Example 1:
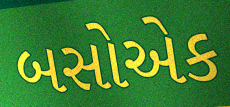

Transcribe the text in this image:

બસોએક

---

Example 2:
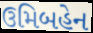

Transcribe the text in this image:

ઉમિબહેન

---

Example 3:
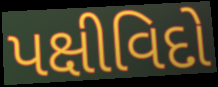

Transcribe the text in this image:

પક્ષીવિદો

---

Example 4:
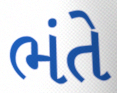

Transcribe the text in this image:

ભંતે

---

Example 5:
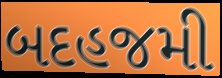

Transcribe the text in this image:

બદહજમી